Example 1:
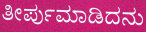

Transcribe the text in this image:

ತೀರ್ಪುಮಾಡಿದನು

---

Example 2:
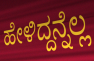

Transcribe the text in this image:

ಹೇಳಿದ್ದನ್ನೆಲ್ಲ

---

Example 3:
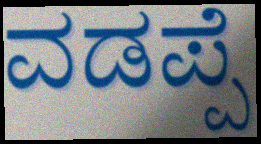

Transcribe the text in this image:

ವಡಪ್ಪೆ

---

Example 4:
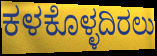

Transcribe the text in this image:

ಕಳಕೊಳ್ಳದಿರಲು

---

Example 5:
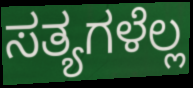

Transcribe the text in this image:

ಸತ್ಯಗಳೆಲ್ಲ